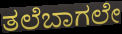
ತಲೆಬಾಗಲೇ